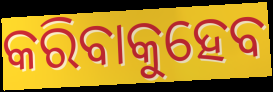
କରିବାକୁହେବ